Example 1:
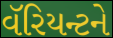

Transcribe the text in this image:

વૅરિયન્ટને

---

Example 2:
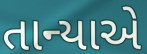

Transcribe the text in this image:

તાન્યાએ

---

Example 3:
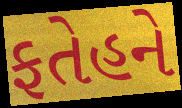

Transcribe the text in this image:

ફતેહને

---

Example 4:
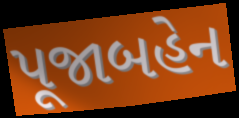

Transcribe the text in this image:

પૂજાબહેન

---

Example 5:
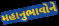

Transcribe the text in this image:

મહાનુભાવોને